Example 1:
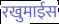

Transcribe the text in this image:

रखुमाईस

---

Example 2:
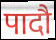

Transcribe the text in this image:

पादौ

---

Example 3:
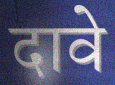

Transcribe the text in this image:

दावे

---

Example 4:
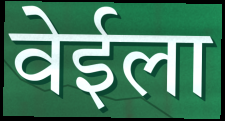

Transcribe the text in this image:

वेईला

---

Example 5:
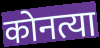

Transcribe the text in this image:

कोनत्या